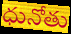
ధునోతు